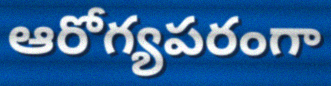
ఆరోగ్యపరంగా